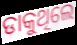
ଡାକୁଥିଲେ